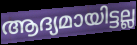
ആദ്യമായിട്ടല്ല